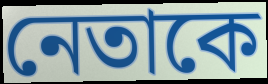
নেতাকে